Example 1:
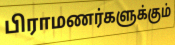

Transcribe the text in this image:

பிராமணர்களுக்கும்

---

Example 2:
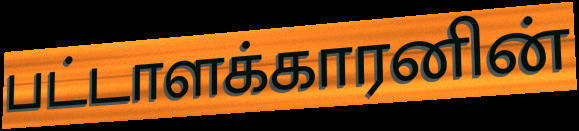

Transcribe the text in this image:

பட்டாளக்காரனின்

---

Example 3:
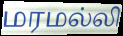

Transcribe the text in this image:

மரமல்லி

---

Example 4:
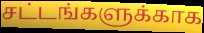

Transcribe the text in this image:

சட்டங்களுக்காக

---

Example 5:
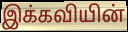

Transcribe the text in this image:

இக்கவியின்